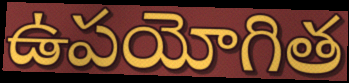
ఉపయోగిత